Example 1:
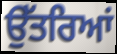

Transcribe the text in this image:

ਉੱਤਰਿਆਂ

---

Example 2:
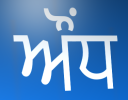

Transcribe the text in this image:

ਔਂਧ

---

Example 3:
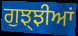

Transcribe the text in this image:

ਗੁਝ੍ਝੀਆਂ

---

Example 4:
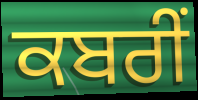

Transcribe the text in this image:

ਕਬਰੀਂ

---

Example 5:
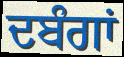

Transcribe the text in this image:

ਦਬੰਗਾਂ